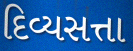
દિવ્યસત્તા